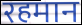
रहमान